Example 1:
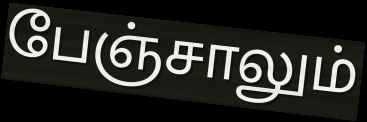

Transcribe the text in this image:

பேஞ்சாலும்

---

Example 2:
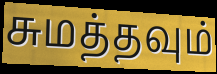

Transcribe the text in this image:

சுமத்தவும்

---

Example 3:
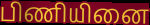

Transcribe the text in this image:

பிணியினை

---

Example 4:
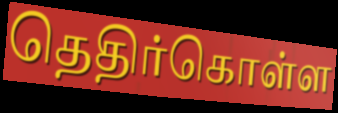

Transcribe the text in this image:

தெதிர்கொள்ள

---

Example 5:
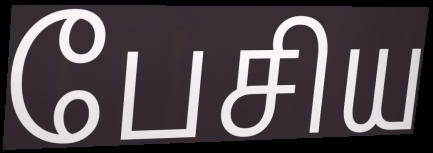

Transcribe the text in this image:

பேசிய